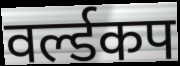
वर्ल्‍डकप